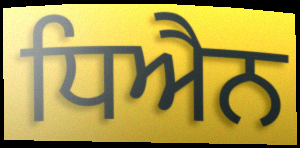
ਧਿਐਨ